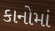
કાનોમાં